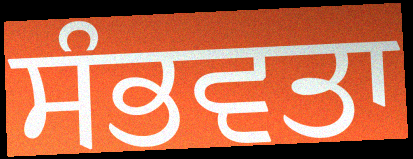
ਸੰਭਵਤਾ